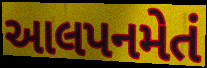
આલપનમેતં